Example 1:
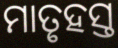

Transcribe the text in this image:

ମାତୃହସ୍ତ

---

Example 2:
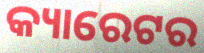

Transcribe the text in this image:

କ୍ୟାରେଟର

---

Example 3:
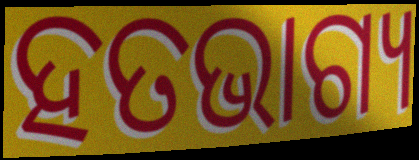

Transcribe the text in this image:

ହତଭାଗ୍ୟ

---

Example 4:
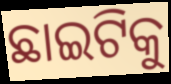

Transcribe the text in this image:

ଛାଇଟିକୁ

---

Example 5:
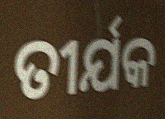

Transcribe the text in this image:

ତୀର୍ଯକ